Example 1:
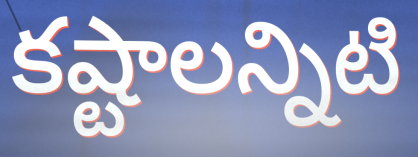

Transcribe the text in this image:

కష్టాలన్నిటి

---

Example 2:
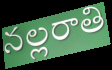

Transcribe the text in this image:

నల్లరాతి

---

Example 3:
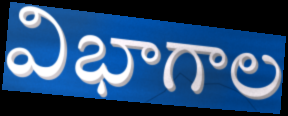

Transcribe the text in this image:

విభాగాల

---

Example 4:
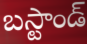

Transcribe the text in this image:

బస్టాండ్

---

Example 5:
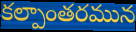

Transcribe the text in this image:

కల్పాంతరమున